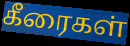
கீரைகள்